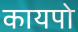
कायपो